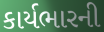
કાર્યભારની